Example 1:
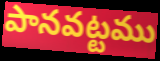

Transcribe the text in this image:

పానవట్టము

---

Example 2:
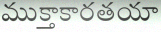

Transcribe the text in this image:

ముక్తాకారతయా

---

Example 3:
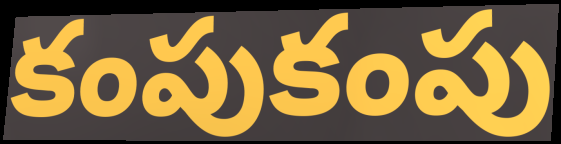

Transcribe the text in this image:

కంపుకంపు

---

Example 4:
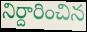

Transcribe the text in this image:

నిర్దారించిన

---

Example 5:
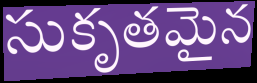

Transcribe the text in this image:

సుకృతమైన